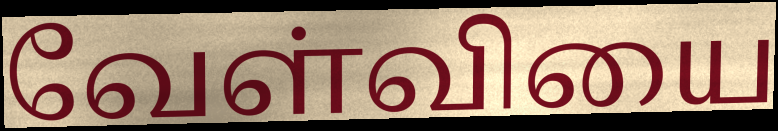
வேள்வியை